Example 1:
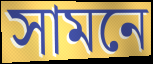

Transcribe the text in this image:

সামনে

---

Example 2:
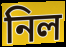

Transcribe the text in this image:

নিল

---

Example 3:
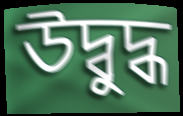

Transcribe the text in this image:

উদ্বুদ্ধ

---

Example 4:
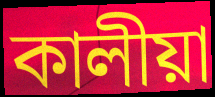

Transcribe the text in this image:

কালীয়া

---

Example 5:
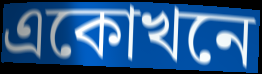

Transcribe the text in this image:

একোখনে